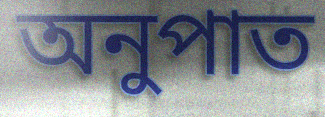
অনুপাত